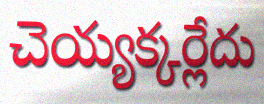
చెయ్యక్కర్లేదు